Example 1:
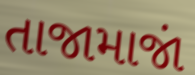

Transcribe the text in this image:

તાજામાજાં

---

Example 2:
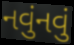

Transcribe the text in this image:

નવુંનવું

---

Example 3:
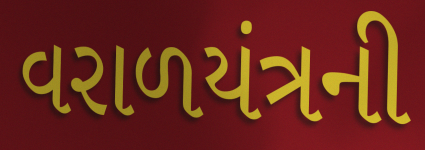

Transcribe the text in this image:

વરાળયંત્રની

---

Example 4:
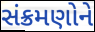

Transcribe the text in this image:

સંક્રમણોને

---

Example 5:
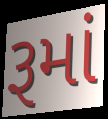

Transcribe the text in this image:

રૂમાં